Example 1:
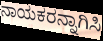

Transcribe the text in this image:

ನಾಯಕರನ್ನಾಗಿಸಿ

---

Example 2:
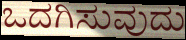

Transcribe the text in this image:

ಒದಗಿಸುವುದು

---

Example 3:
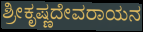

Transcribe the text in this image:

ಶ್ರೀಕೃಷ್ಣದೇವರಾಯನ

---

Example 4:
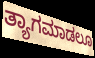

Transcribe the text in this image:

ತ್ಯಾಗಮಾಡಲೂ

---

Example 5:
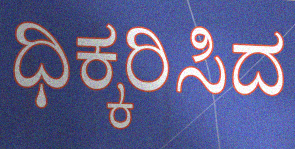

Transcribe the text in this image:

ಧಿಕ್ಕರಿಸಿದ